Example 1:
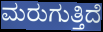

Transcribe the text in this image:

ಮರುಗುತ್ತಿದೆ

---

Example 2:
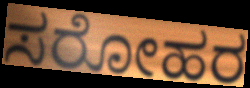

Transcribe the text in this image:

ಸರೋಹರ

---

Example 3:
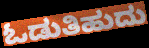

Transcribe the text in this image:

ಓಡುತಿಹುದು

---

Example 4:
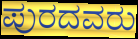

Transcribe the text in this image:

ಪುರದವರು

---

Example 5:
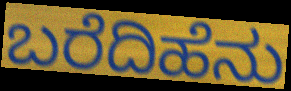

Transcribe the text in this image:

ಬರೆದಿಹೆನು